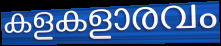
കളകളാരവം